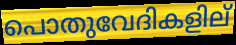
പൊതുവേദികളില്